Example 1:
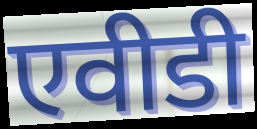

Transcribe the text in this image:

एवीडी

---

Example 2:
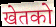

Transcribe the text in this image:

खेतको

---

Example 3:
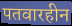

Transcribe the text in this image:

पतवारहीन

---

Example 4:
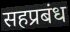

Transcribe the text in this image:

सहप्रबंध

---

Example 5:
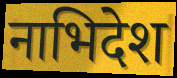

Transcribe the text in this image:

नाभिदेश